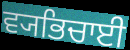
ਵ੍ਯਭਿਚਾਈ